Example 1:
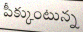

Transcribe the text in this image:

పీక్కుంటున్న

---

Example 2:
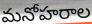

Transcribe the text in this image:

మనోహరాల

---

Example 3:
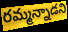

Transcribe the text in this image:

రమ్మన్నాడని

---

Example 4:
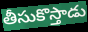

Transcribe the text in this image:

తీసుకొస్తాడు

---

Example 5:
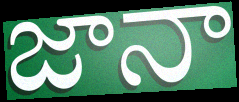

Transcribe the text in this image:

జానా